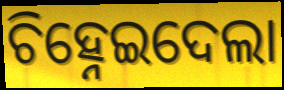
ଚିହ୍ନେଇଦେଲା